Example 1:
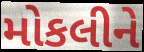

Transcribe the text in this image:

મોકલીને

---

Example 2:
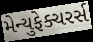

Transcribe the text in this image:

મેન્યુફેક્ચરર્સ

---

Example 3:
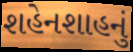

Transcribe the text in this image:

શહેનશાહનું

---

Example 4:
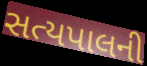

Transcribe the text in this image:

સત્યપાલની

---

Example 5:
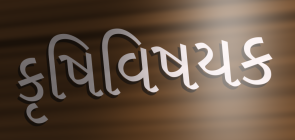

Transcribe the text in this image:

કૃષિવિષયક